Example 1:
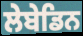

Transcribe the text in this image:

ਲੇਬੇਡਿਨ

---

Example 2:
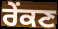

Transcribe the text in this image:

ਰੇੰਕਣ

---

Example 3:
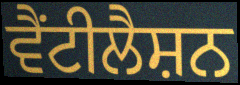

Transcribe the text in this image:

ਵੈਂਟੀਲੈਸ਼ਨ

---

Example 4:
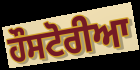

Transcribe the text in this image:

ਹੌਸਟੋਰੀਆ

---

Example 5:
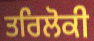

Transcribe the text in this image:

ਤਰਿਲੋਕੀ